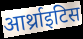
आर्थ्राइटिस